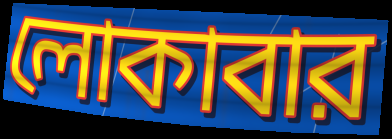
লোকাবার